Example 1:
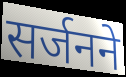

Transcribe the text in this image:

सर्जनने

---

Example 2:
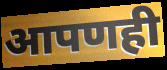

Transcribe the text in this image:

आपणही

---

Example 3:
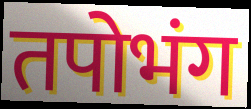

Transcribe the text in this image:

तपोभंग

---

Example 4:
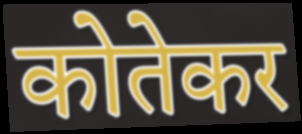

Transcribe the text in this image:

कोतेकर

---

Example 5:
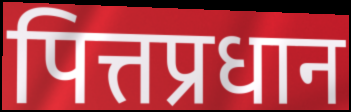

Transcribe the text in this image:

पित्तप्रधान